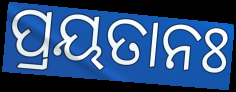
ପ୍ରୟତାନଃ